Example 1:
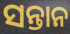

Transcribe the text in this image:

ସନ୍ତାନ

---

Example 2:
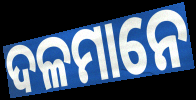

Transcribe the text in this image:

ଦଳମାନେ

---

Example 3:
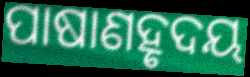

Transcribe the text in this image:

ପାଷାଣହୃଦୟ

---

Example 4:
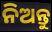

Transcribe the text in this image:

ନିଅନ୍ତୁ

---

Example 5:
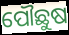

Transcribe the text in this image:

ପୌଛୁଷ